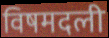
विषमदली